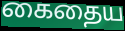
கைதைய